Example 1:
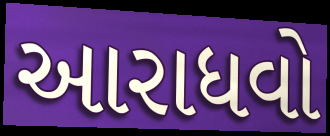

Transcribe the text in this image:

આરાધવો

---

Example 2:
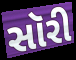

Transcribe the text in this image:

સૉરી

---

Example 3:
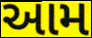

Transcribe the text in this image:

આમ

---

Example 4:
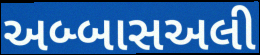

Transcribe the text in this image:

અબ્બાસઅલી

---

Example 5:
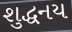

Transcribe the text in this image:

શુદ્ધનય